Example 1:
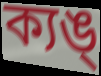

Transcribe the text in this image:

ক্যঙ্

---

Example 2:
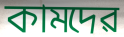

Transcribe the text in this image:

কামদেৱ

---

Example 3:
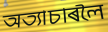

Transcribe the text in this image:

অত্যাচাৰলৈ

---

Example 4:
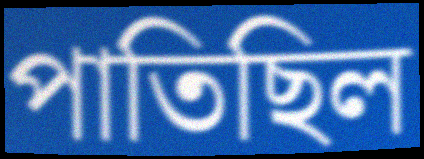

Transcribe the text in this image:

পাতিছিল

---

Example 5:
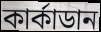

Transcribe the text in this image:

কাৰ্কাডান